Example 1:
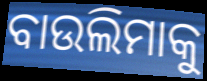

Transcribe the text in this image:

ବାଉଲିମାକୁ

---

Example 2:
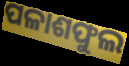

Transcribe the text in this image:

ପଳାଶଫୁଲ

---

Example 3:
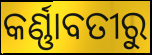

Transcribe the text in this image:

କର୍ଣ୍ଣାବତୀରୁ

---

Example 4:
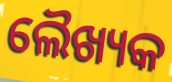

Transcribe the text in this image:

ଲୈଖ୍ୟକ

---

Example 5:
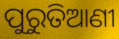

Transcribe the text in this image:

ପୁରୁତିଆଣୀ